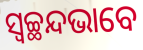
ସ୍ୱଚ୍ଛନ୍ଦଭାବେ